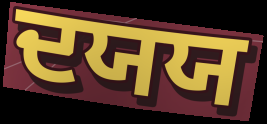
ਦਯਯ